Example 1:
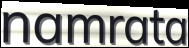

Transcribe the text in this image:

namrata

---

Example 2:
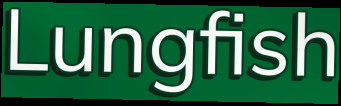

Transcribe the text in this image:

Lungfish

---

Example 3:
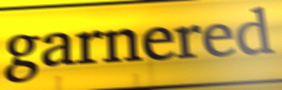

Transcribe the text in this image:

garnered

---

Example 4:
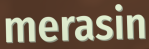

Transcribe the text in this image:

merasin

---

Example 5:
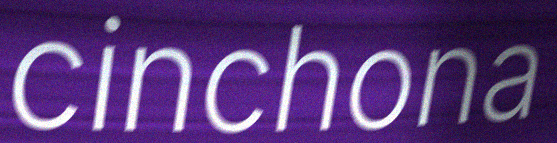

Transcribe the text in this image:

cinchona